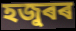
হজুৰৰ